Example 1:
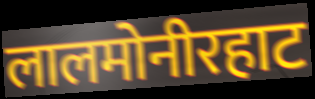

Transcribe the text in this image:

लालमोनीरहाट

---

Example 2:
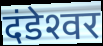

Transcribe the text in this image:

दंडेश्वर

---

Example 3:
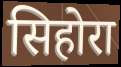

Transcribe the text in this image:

सिहोरा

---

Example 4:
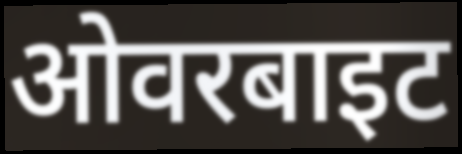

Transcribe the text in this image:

ओवरबाइट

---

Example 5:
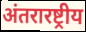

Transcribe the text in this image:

अंतरारष्ट्रीय